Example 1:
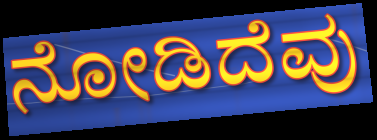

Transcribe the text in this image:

ನೋಡಿದೆವು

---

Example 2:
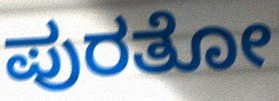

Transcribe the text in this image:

ಪುರತೋ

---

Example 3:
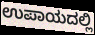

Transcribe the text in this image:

ಉಪಾಯದಲ್ಲಿ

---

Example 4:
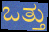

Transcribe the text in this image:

ಒತ್ತು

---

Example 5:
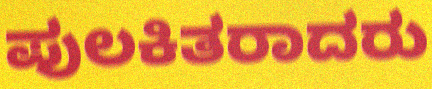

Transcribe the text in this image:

ಪುಲಕಿತರಾದರು